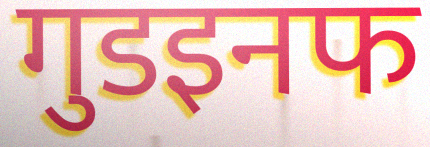
गुडइनफ